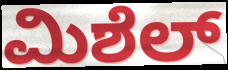
ಮಿಶೆಲ್